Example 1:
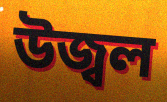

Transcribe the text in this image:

উজ্বল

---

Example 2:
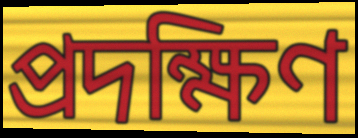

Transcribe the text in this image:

প্ৰদক্ষিণ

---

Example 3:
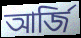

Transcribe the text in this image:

আৰ্জি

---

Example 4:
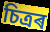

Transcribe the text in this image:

চিত্ৰৰ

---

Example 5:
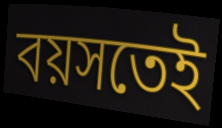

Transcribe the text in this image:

বয়সতেই